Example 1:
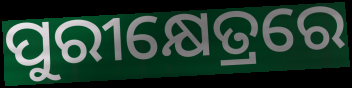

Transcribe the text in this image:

ପୁରୀକ୍ଷେତ୍ରରେ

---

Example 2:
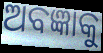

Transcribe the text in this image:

ଅବଜ୍ଞାକୁ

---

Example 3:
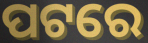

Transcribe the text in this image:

ପଟରେ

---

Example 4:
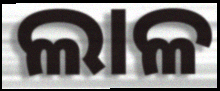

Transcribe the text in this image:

ଲାଳ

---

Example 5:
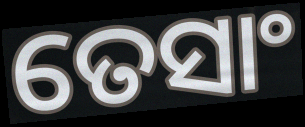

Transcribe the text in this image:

ତେସାଂ